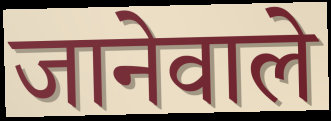
जानेवाले